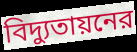
বিদ্যুতায়নের